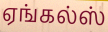
ஏங்கல்ஸ்